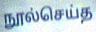
நூல்செய்த